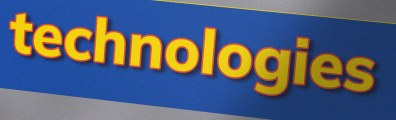
technologies